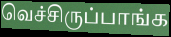
வெச்சிருப்பாங்க